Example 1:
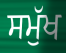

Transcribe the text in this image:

ਸਮੁੱਖ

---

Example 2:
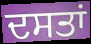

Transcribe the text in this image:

ਦਸਤਾਂ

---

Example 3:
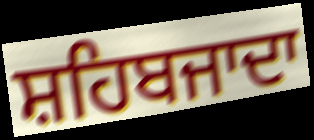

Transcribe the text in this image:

ਸ਼ਹਿਬਜਾਦਾ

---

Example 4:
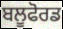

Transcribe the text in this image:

ਬਲੂਫੋਰਡ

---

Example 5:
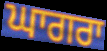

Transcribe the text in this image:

ਘਾਗਰਾ